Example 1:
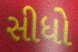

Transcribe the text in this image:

સીધો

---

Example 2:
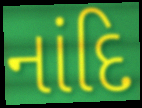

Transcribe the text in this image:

નાંદિ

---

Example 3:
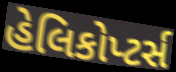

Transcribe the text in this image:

હેલિકોપ્ટર્સ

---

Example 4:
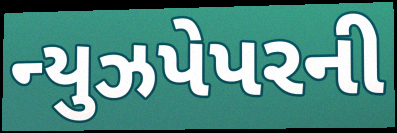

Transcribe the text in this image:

ન્યુઝપેપરની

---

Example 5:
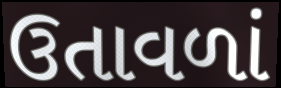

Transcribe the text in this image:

ઉતાવળાં